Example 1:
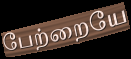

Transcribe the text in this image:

பேற்றையே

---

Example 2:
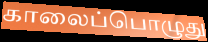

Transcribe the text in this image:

காலைப்பொழுது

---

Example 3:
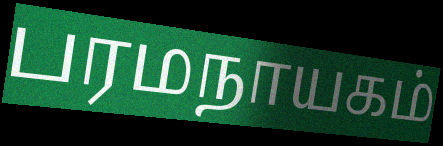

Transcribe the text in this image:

பரமநாயகம்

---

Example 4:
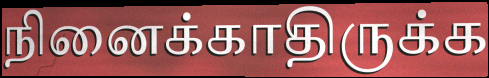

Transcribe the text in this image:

நினைக்காதிருக்க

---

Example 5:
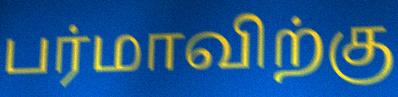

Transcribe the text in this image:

பர்மாவிற்கு